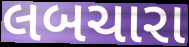
લબચારા